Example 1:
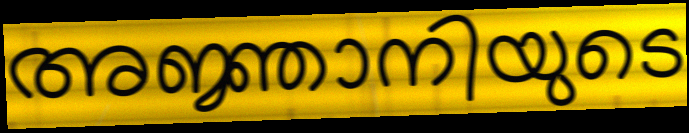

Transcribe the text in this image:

അജ്ഞാനിയുടെ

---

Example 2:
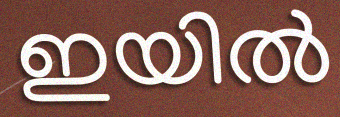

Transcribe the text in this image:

ഇയിൽ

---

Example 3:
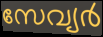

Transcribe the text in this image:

സേവ്യർ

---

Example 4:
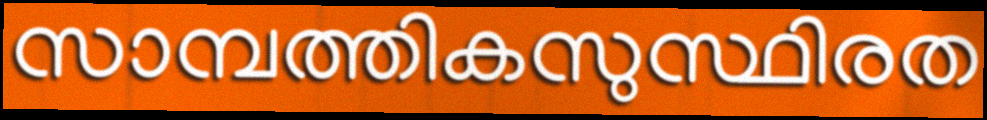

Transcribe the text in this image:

സാമ്പത്തികസുസ്ഥിരത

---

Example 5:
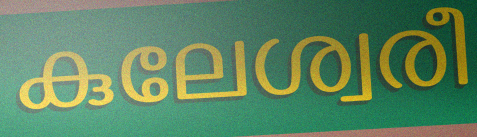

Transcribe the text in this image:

കുലേശ്വരീ